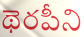
థెరపీని